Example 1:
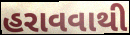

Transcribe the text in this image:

હરાવવાથી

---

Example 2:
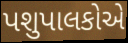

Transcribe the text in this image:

પશુપાલકોએ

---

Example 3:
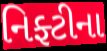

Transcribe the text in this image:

નિફ્ટીના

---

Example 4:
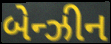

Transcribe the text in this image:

બેન્ઝીન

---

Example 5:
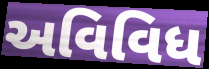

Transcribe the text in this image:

અવિવિધ